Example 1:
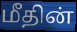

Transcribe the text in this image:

மீதின்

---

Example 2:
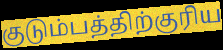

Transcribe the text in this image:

குடும்பத்திற்குரிய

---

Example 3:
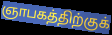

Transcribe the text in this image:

ஞாபகத்திற்குக்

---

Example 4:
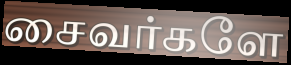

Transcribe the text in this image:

சைவர்களே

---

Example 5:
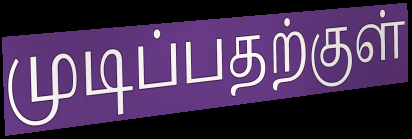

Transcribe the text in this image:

முடிப்பதற்குள்